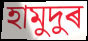
হামুদুৰ